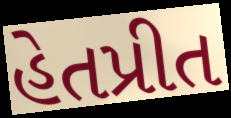
હેતપ્રીત